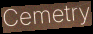
Cemetry